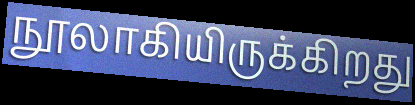
நூலாகியிருக்கிறது